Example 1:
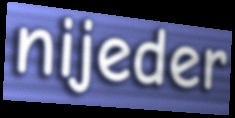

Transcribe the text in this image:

nijeder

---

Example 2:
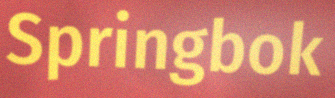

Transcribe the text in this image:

Springbok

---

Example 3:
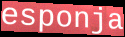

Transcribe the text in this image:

esponja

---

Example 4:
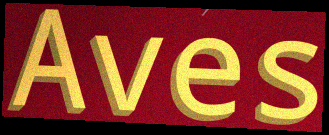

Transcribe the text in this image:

Aves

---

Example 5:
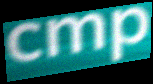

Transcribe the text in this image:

cmp